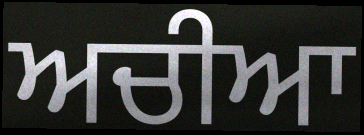
ਅਚੀਆ